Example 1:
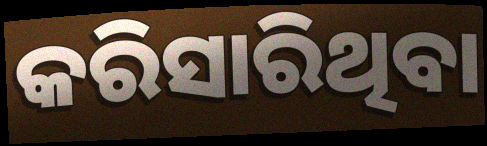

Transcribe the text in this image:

କରିସାରିଥିବା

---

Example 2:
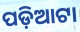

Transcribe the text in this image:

ପଡ଼ିଆଟା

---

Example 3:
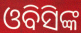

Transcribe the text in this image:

ଓବିସିଙ୍କ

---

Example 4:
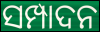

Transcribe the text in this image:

ସମ୍ପାଦନ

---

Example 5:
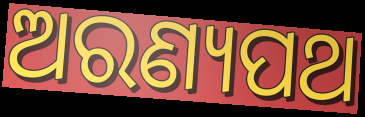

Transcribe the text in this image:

ଅରଣ୍ୟପଥ